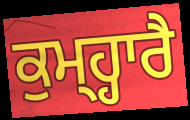
ਕੁਮ੍ਹ੍ਹਾਰੈ